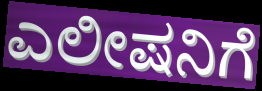
ಎಲೀಷನಿಗೆ